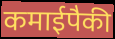
कमाईपैकी